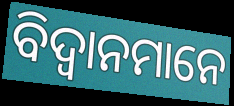
ବିଦ୍ଵାନମାନେ